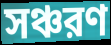
সঞ্চরণ